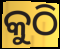
କୁଠି